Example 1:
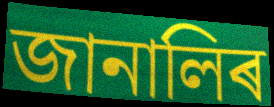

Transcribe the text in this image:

জানালিৰ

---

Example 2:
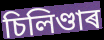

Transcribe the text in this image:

চিলিণ্ডাৰ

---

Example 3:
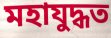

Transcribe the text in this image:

মহাযুদ্ধত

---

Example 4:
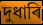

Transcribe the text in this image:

দুধাৰি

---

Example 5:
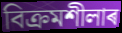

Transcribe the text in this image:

বিক্ৰমশীলাৰ